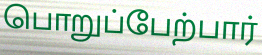
பொறுப்பேற்பார்